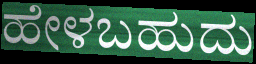
ಹೇಳಬಹುದು